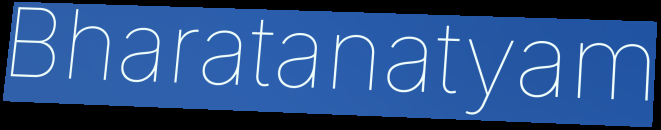
Bharatanatyam